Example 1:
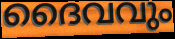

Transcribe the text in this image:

ദൈവവും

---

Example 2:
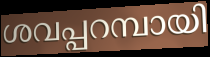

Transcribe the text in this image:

ശവപ്പറമ്പായി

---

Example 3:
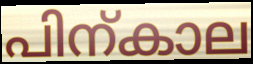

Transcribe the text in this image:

പിന്കാല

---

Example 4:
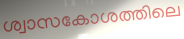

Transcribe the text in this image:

ശ്വാസകോശത്തിലെ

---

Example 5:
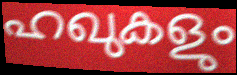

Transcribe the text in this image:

ഹഖുകളും